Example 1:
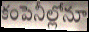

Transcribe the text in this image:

కంపెనీల్లోనూ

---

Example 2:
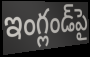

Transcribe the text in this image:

ఇంగ్లండ్‌పై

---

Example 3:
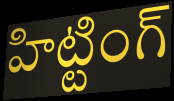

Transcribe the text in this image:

హిట్టింగ్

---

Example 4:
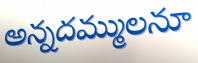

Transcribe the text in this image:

అన్నదమ్ములనూ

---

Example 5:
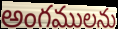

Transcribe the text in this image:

అంగములను